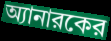
অ্যানারকের